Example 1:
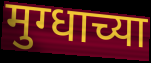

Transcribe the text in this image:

मुग्धाच्या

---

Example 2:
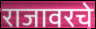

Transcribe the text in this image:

राजावरचे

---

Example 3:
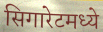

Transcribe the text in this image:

सिगारेटमध्ये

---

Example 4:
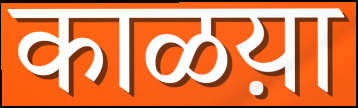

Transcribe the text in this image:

काळय़ा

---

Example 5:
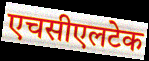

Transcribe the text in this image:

एचसीएलटेक